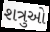
શત્રુઓ